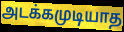
அடக்கமுடியாத